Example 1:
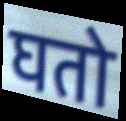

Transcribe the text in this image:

घतो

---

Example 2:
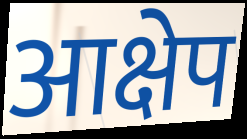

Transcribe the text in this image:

आक्षेप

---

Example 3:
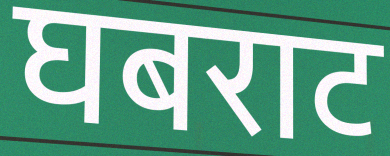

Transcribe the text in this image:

घबराट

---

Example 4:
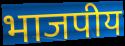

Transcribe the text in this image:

भाजपीय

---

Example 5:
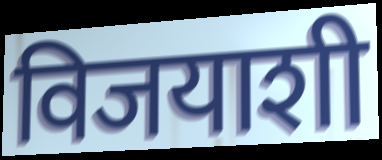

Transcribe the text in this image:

विजयाशी